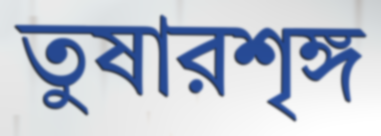
তুষারশৃঙ্গ